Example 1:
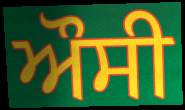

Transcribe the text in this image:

ਔਸੀ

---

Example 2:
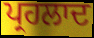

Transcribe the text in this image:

ਪ੍ਰਹਲਾਦ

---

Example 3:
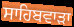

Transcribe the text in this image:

ਸਾਹਿਬਵਾੜਾ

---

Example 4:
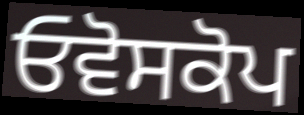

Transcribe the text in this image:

ਓਵੋਸਕੋਪ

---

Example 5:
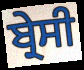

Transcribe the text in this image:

ਬ੍ਰੇਸੀ